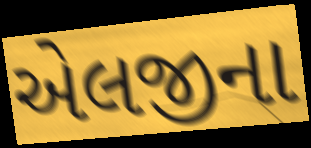
એલજીના